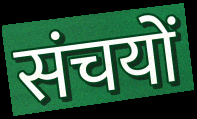
संचयों